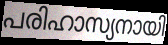
പരിഹാസ്യനായി